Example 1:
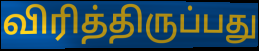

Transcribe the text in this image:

விரித்திருப்பது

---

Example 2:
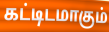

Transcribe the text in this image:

கட்டிடமாகும்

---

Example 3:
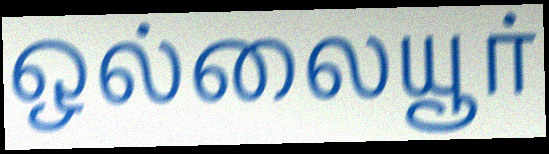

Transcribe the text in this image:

ஒல்லையூர்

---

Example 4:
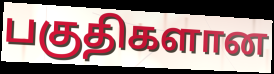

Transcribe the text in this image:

பகுதிகளான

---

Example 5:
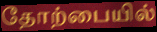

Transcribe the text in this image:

தோற்பையில்